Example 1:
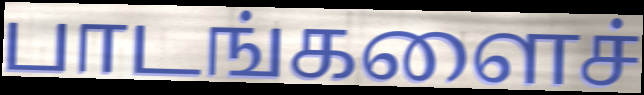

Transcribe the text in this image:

பாடங்களைச்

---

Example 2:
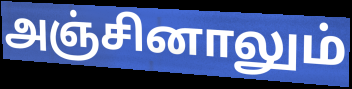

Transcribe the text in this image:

அஞ்சினாலும்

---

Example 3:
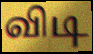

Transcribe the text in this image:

விடி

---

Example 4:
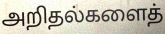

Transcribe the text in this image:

அறிதல்களைத்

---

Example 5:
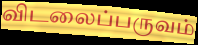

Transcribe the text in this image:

விடலைப்பருவம்